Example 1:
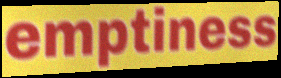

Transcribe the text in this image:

emptiness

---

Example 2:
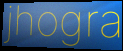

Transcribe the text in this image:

jhogra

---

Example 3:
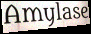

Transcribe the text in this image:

Amylase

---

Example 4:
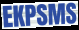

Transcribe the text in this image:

EKPSMS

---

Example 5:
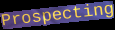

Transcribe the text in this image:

Prospecting